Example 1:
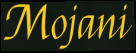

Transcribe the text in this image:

Mojani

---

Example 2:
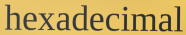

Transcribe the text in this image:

hexadecimal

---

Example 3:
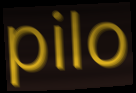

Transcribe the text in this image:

pilo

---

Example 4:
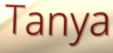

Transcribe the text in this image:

Tanya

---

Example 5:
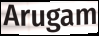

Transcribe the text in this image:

Arugam